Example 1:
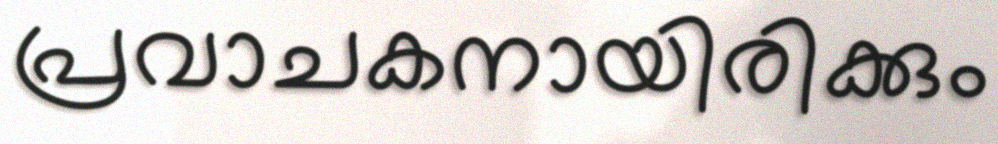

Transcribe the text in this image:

പ്രവാചകനായിരിക്കും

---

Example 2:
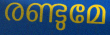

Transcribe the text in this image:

രണ്ടുമേ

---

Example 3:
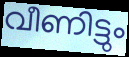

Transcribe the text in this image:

വീണിട്ടും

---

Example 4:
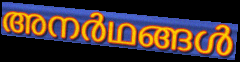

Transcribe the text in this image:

അനർഥങ്ങൾ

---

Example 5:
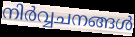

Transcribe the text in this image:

നിർവ്വചനങ്ങൾ